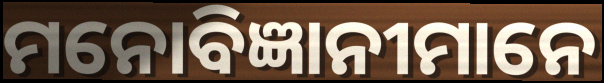
ମନୋବିଜ୍ଞାନୀମାନେ